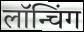
लॉन्चिंग